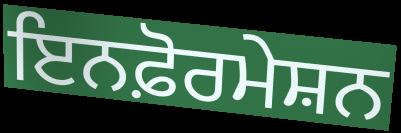
ਇਨਫ਼ੋਰਮੇਸ਼ਨ